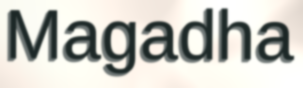
Magadha